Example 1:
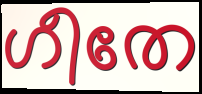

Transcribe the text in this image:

ഗീതേ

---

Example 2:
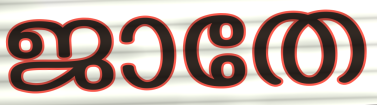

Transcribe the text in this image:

ജാതേ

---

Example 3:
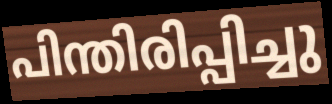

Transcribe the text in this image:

പിന്തിരിപ്പിച്ചു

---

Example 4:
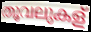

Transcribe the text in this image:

തൂവലുകള്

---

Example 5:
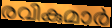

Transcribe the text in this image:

രവികുമാർ